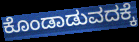
ಕೊಂಡಾಡುವದಕ್ಕೆ